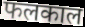
फलकाल